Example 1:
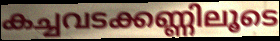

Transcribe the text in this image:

കച്ചവടക്കണ്ണിലൂടെ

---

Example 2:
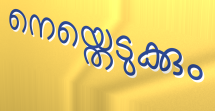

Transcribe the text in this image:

നെയ്തെടുക്കും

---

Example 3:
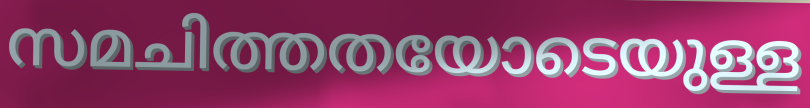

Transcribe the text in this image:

സമചിത്തതയോടെയുള്ള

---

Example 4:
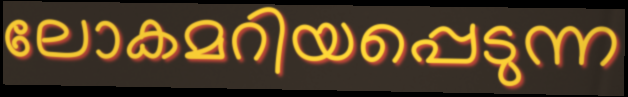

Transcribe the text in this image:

ലോകമറിയപ്പെടുന്ന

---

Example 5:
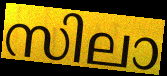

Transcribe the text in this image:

സിലാ